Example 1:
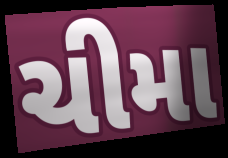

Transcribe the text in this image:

ચીમા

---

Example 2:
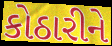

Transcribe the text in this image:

કોઠારીને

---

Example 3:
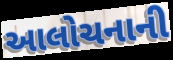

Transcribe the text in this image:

આલોચનાની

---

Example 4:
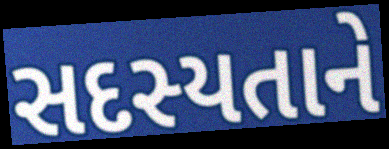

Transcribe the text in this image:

સદસ્યતાને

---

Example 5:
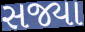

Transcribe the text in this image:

સજ્યા